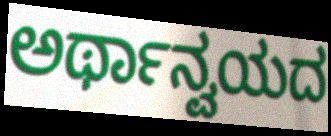
ಅರ್ಥಾನ್ವಯದ